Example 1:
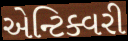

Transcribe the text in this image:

એન્ટિક્વરી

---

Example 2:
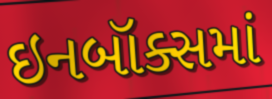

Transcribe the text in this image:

ઇનબૉક્સમાં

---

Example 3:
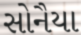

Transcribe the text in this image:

સોનૈયા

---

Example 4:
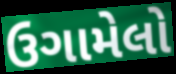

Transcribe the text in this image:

ઉગામેલો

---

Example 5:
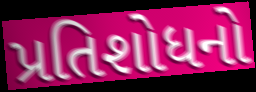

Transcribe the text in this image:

પ્રતિશોધનો